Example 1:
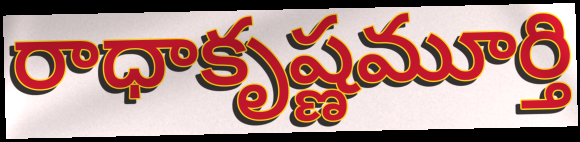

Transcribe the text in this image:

రాధాకృష్ణమూర్తి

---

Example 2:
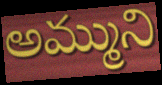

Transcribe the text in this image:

అమ్ముని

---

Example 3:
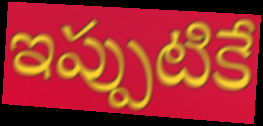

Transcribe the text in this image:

ఇప్పుటికే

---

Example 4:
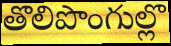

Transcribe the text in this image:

తొలిపొంగుల్లొ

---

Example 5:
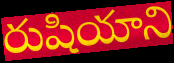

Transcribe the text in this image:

రుషియాని